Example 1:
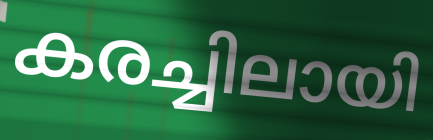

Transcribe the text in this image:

കരച്ചിലായി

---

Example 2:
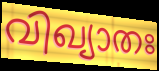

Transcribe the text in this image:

വിഖ്യാതഃ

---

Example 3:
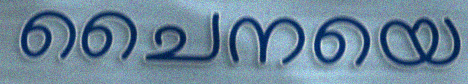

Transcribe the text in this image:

ചൈനയെ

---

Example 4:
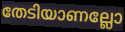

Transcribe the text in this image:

തേടിയാണല്ലോ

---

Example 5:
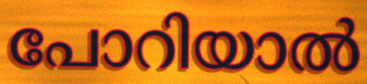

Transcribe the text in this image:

പോറിയാൽ